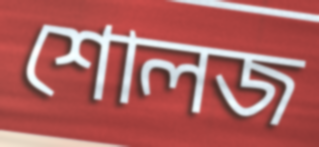
শোলজ